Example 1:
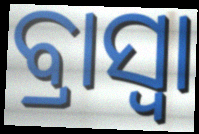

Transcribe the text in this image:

ବ୍ରାସ୍ବା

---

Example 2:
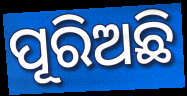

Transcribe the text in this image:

ପୂରିଅଛି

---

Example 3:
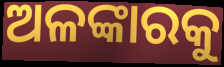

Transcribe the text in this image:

ଅଳଙ୍କାରକୁ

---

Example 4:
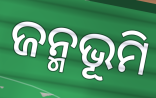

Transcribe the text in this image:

ଜନ୍ମଭୂମି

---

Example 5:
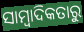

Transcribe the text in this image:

ସାମ୍ବାଦିକତାରୁ